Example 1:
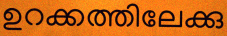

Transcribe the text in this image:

ഉറക്കത്തിലേക്കു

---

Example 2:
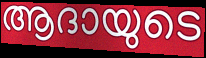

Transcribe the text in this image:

ആദായുടെ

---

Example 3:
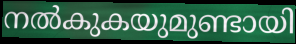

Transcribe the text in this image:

നൽകുകയുമുണ്ടായി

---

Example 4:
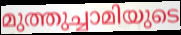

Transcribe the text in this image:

മുത്തുച്ചാമിയുടെ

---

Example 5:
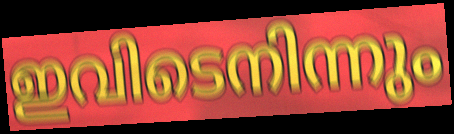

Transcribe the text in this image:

ഇവിടെനിന്നും